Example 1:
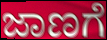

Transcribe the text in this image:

ಜಾಣಗೆ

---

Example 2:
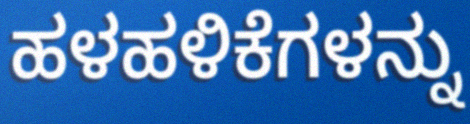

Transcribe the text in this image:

ಹಳಹಳಿಕೆಗಳನ್ನು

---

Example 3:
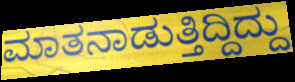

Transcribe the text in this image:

ಮಾತನಾಡುತ್ತಿದ್ದಿದ್ದು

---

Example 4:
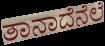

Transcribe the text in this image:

ತಾನಾದೆನೆಲೆ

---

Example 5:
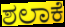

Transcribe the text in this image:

ಶಲಾಕೆ